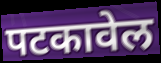
पटकावेल